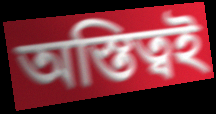
অস্তিত্বই